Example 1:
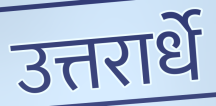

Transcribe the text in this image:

उत्तरार्धे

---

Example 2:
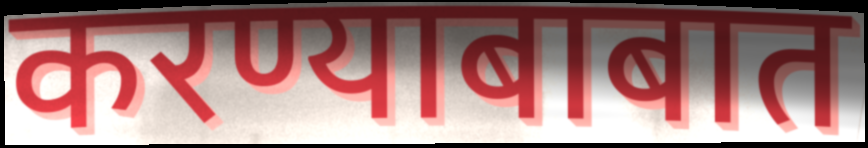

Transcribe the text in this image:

करण्याबाबात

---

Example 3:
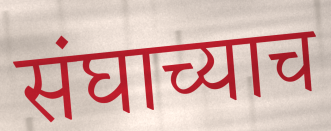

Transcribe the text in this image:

संघाच्याच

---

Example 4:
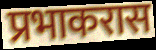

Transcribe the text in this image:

प्रभाकरास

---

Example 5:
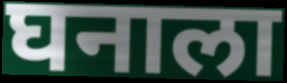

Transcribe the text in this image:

घनाला